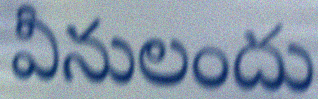
వీనులందు